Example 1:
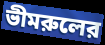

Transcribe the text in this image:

ভীমরুলের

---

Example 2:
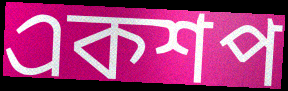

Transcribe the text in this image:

একশপ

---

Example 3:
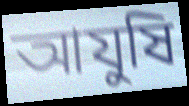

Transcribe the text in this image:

আযুষি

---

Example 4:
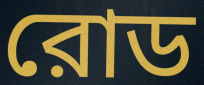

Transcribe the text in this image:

রোড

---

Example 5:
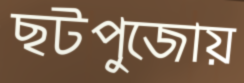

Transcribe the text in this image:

ছটপুজোয়